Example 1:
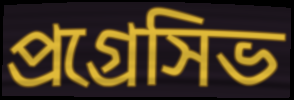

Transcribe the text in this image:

প্রগ্রেসিভ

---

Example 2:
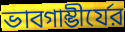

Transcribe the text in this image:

ভাবগাম্ভীর্যের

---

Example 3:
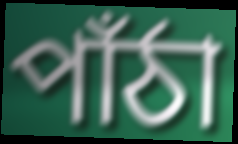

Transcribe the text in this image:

পাঁঠা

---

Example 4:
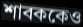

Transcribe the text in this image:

শাবককেও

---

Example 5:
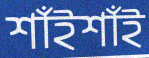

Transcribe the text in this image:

শাঁইশাঁই